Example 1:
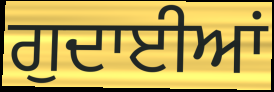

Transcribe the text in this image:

ਗੁਦਾਈਆਂ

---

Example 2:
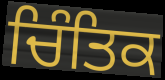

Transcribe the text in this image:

ਚਿੰਤਿਕ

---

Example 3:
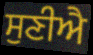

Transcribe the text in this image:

ਸੁਣੀਐ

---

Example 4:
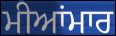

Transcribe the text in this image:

ਮੀਆਂਮਾਰ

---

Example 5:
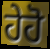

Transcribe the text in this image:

ਹੇਹੋ